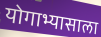
योगाभ्यासाला